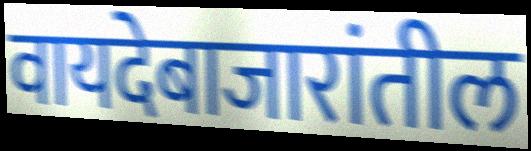
वायदेबाजारांतील